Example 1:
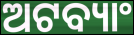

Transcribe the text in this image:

ଅଟବ୍ୟାଂ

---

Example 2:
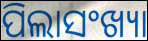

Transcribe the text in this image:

ପିଲାସଂଖ୍ୟା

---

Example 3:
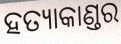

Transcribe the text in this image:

ହତ୍ୟାକାଣ୍ଡର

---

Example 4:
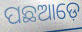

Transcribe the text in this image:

ପଛଆଡ଼େ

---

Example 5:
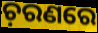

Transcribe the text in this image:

ଚ଼ରଣରେ